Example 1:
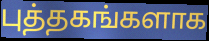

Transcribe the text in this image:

புத்தகங்களாக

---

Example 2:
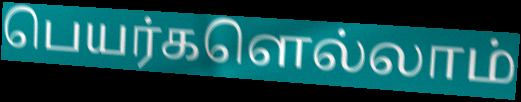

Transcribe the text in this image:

பெயர்களெல்லாம்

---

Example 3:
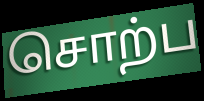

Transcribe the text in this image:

சொற்ப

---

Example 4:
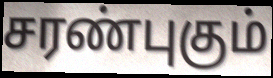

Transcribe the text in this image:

சரண்புகும்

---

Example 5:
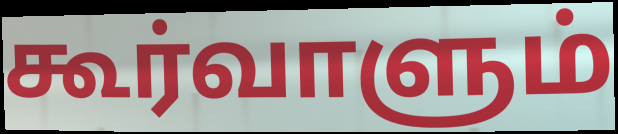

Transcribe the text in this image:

கூர்வாளும்